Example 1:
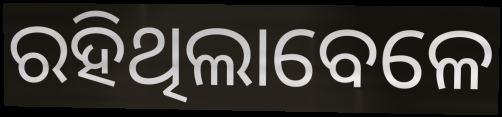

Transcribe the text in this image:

ରହିଥିଲାବେଳେ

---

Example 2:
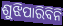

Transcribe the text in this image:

ଶୁଝିପାରିବିନି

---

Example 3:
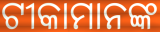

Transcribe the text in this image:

ଟୀକାମାନଙ୍କ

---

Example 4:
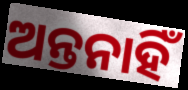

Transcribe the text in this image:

ଅନ୍ତନାହିଁ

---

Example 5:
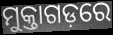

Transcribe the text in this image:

ମୁକ୍ତାଗଡ଼ରେ